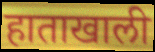
हाताखाली